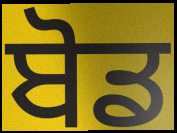
ਬੋਡ